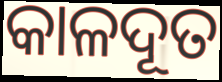
କାଳଦୂତ